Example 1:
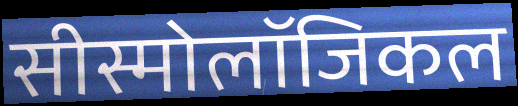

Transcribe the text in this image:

सीस्मोलॉजिकल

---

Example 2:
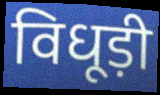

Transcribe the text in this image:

विधूड़ी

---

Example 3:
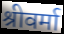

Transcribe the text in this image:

श्रीवर्मा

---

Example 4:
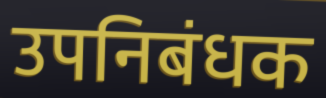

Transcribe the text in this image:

उपनिबंधक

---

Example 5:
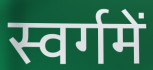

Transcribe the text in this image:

स्वर्गमें